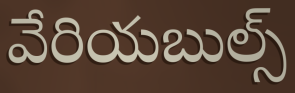
వేరియబుల్స్